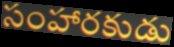
సంహారకుడు